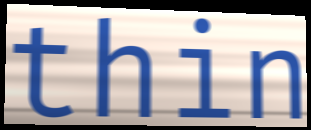
thin